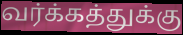
வர்க்கத்துக்கு